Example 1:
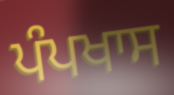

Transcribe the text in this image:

ਪੰਪਖਾਸ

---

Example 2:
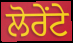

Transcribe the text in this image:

ਲੋਰੇਂਟੇ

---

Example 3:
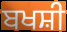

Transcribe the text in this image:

ਬਖਸ਼ੀ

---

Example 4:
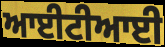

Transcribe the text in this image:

ਆਈਟੀਆਈ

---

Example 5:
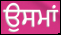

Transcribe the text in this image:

ਉਸਮਾਂ